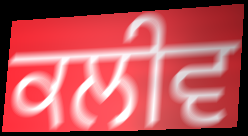
ਕਲੀਵ